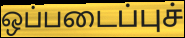
ஒப்படைப்புச்